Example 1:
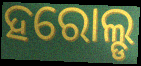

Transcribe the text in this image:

ହରୋଲ୍ଡ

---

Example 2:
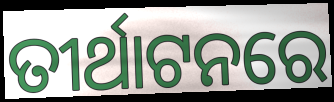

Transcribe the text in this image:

ତୀର୍ଥାଟନରେ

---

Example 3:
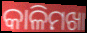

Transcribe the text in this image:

କାଳିମଖା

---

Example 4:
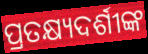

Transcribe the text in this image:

ପ୍ରତକ୍ଷ୍ୟଦର୍ଶୀଙ୍କ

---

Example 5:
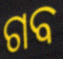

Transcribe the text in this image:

ଗବ